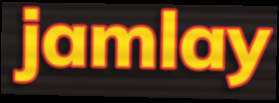
jamlay